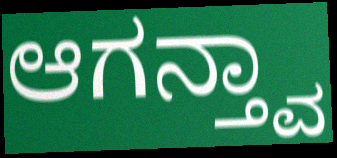
ಆಗನ್ತ್ವಾ